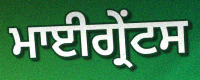
ਮਾਈਗ੍ਰੇਂਟਸ